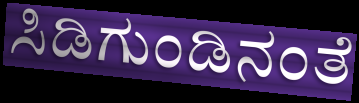
ಸಿಡಿಗುಂಡಿನಂತೆ